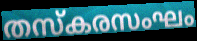
തസ്കരസംഘം